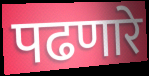
पढणारे